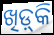
ଖିଡ଼୍‌କି